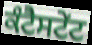
ਕੰਟੈਸਟੇਂਟ